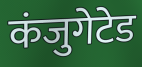
कंजुगेटेड